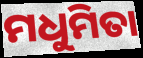
ମଧୁମିତା